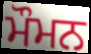
ਮੌਮਨ